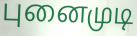
புனைமுடி